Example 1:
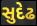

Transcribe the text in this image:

સુદેઢ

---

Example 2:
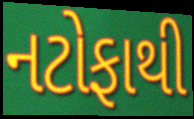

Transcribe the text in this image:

નટોફાથી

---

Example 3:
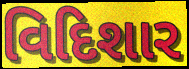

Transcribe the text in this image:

વિદિશાર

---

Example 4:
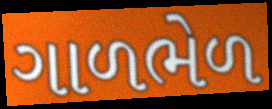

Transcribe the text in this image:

ગાળભેળ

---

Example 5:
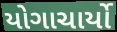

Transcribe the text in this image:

યોગાચાર્યો